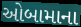
ઓબામાના